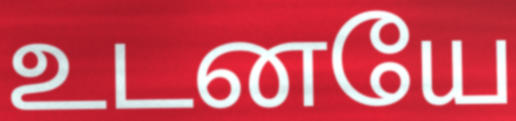
உடனயே